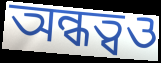
অন্ধত্বও